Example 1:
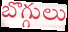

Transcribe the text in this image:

బొగ్గులు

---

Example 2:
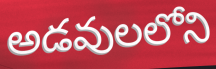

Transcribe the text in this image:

అడవులలోని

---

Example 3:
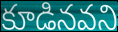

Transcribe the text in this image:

కూడినవని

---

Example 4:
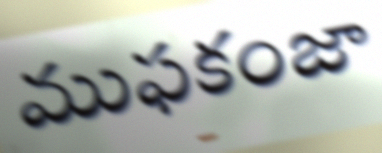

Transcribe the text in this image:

ముఫకంజా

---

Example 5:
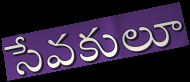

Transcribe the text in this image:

సేవకులూ